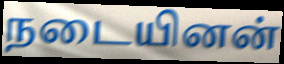
நடையினன்